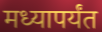
मध्यापर्यंत